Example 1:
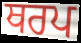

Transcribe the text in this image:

ਥਰਪ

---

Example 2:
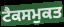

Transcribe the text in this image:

ਟੈਕਸਮੁਕਤ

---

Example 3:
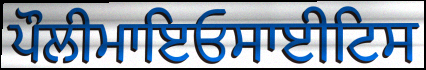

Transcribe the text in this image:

ਪੌਲੀਮਾਇਓਸਾਈਟਿਸ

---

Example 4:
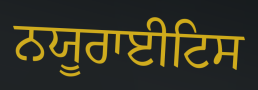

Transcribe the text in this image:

ਨਯੂਰਾਈਟਿਸ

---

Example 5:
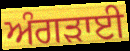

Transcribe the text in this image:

ਅੰਗੜਾਈ